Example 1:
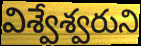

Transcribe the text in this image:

విశ్వేశ్వరుని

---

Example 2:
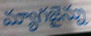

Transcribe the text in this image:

మ్యాగజైన్ను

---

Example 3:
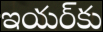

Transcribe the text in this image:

ఇయర్‌కు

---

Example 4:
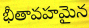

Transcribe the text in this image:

భీతావహమైన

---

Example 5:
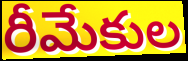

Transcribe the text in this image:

రీమేకుల